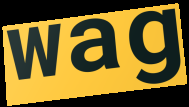
wag